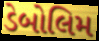
ડેબોલિમ